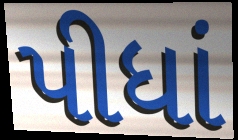
પીધાં